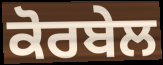
ਕੋਰਬੇਲ